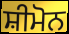
ਸ਼ੀਮੋਨ